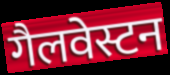
गैलवेस्टन